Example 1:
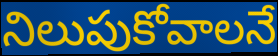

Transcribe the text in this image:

నిలుపుకోవాలనే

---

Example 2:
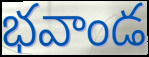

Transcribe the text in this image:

భవాండ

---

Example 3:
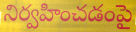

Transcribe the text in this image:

నిర్వహించడంపై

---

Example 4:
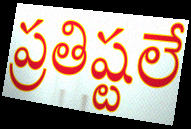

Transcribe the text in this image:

ప్రతిష్టలే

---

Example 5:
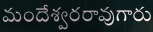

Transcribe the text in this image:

మందేశ్వరరావుగారు